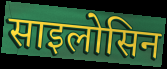
साइलोसिन